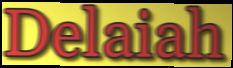
Delaiah